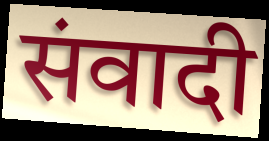
संवादी